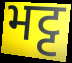
भट्ट